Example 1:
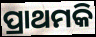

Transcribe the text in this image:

ପ୍ରାଥମକି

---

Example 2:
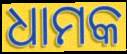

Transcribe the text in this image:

ଧାମକ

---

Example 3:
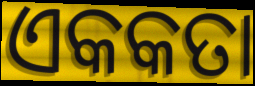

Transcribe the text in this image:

ଏକକତା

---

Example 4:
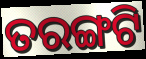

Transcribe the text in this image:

ତରଙ୍ଗଟି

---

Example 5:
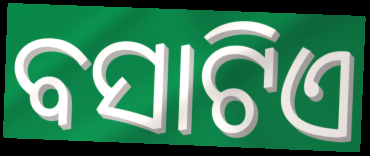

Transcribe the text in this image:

ବସାଟିଏ